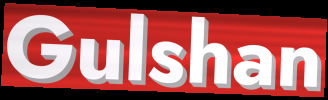
Gulshan